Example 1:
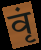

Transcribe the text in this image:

वृं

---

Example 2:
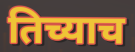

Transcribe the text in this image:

तिच्याच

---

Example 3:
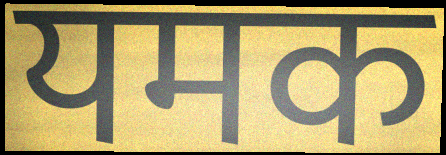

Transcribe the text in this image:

यमक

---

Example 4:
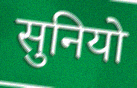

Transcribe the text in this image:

सुनियो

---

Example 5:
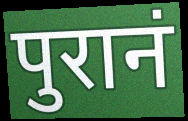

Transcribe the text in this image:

पुरानं